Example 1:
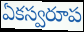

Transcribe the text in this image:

ఏకస్వరూప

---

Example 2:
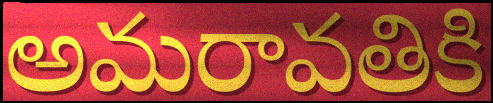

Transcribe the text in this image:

అమరావతికి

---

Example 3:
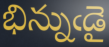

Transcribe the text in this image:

భిన్నుఁడై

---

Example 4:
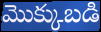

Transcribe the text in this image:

మొక్కుబడి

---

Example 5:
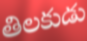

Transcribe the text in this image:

తిలకుడు